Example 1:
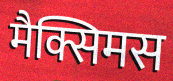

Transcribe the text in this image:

मैक्सिमस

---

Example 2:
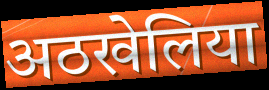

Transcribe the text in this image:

अठखेलिया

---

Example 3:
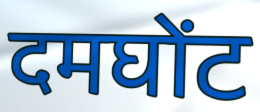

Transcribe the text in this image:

दमघोंट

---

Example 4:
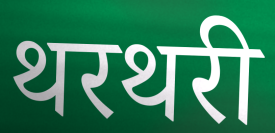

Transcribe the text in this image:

थरथरी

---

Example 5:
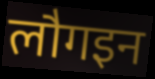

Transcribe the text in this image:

लौगइन